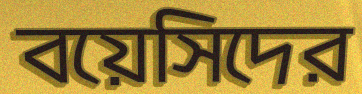
বয়েসিদের